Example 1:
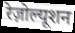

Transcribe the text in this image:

रेज़ोल्यूशन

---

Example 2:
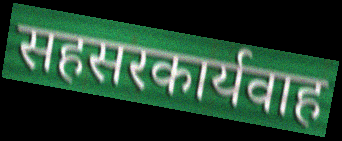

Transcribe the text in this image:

सहसरकार्यवाह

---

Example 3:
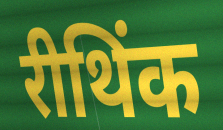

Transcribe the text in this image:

रीथिंक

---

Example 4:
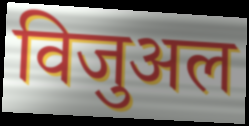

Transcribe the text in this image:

विजुअल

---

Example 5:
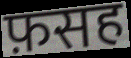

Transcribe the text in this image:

फ़सह